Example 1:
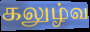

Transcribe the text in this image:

கலுழ்வ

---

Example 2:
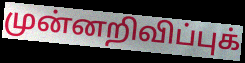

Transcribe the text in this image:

முன்னறிவிப்புக்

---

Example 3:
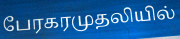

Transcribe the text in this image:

பேரகரமுதலியில்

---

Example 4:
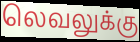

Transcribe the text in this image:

லெவலுக்கு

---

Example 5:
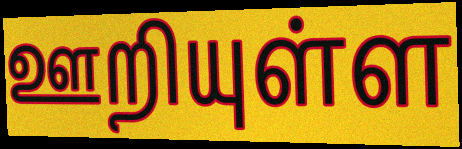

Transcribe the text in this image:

ஊறியுள்ள